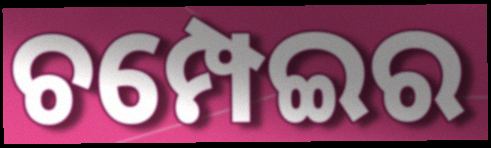
ଚମ୍ପେଇର